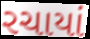
રચાયાં